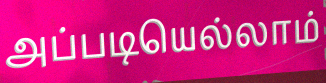
அப்படியெல்லாம்